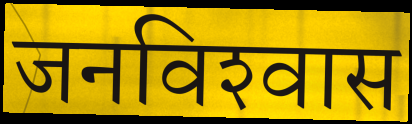
जनविश्वास